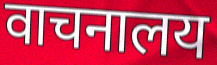
वाचनालय